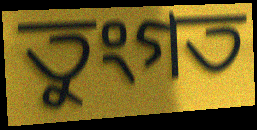
তুংগত